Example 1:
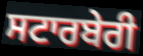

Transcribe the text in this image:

ਸਟਾਰਬੇਰੀ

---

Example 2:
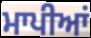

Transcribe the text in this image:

ਮਾਪੀਆਂ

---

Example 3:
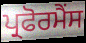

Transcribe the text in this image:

ਪ੍ਰਫੋਰਮੈਂਸ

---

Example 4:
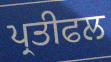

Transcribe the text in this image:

ਪ੍ਰਤੀਫਲ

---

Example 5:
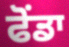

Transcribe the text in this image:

ਫੋਂਡਾ